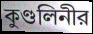
কুণ্ডলিনীর